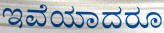
ಇವೆಯಾದರೂ